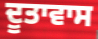
ਦੂਤਾਵਾਸ